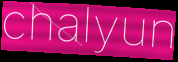
chalyun